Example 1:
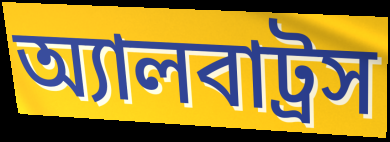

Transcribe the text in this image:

অ্যালবাট্রস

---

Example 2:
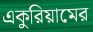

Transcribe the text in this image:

একুরিয়ামের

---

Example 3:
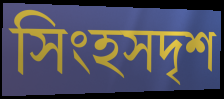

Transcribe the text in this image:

সিংহসদৃশ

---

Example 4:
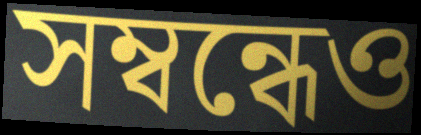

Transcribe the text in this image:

সম্বন্ধেও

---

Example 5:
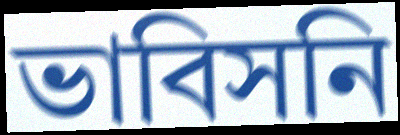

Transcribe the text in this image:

ভাবিসনি